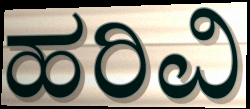
ಹರಿವಿ